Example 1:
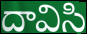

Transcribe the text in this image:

దావిసి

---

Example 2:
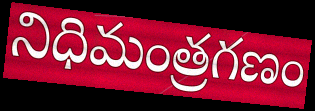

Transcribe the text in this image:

నిధిమంత్రగణం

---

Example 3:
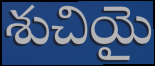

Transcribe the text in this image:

శుచియై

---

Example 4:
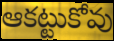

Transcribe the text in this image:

ఆకట్టుకోవు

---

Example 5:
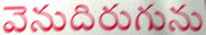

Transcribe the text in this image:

వెనుదిరుగును